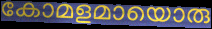
കോമളമായൊരു